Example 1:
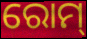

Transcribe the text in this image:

ରୋମ୍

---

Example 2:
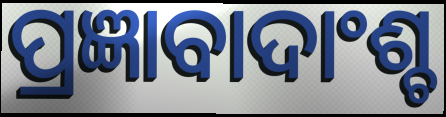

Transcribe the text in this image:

ପ୍ରଜ୍ଞାବାଦାଂଶ୍ଚ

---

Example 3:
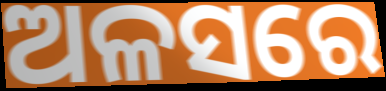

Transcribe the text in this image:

ଅଳସରେ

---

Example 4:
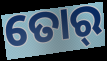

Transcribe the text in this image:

ତୋର୍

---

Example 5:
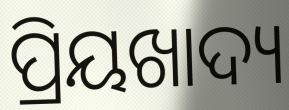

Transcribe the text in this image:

ପ୍ରିୟଖାଦ୍ୟ